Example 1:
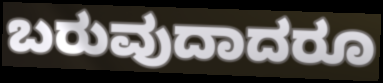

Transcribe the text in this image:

ಬರುವುದಾದರೂ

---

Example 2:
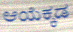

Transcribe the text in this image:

ಆಯೆಕ್ಕಡ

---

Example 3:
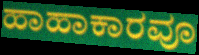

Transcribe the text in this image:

ಹಾಹಾಕಾರವೂ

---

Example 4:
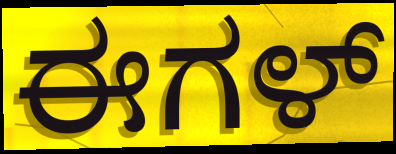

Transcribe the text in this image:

ಈಗಳ್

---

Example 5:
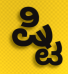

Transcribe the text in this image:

ಷ್ಟಿ